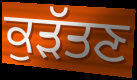
ਕੁੜੱਤਣ